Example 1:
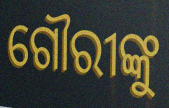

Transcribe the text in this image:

ଗୌରୀଙ୍କୁ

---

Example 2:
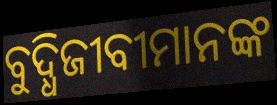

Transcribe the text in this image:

ବୁଦ୍ଧିଜୀବୀମାନଙ୍କ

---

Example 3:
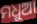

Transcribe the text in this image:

ମଧୁଆ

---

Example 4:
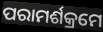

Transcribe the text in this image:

ପରାମର୍ଶକ୍ରମେ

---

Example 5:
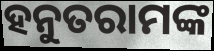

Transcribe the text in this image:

ହନୁତରାମଙ୍କ